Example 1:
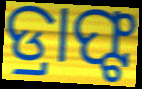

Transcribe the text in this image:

ଡ୍ରାଫ୍ଟ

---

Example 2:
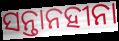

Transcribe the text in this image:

ସନ୍ତାନହୀନା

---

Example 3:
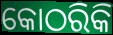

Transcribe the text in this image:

କୋଠରିକି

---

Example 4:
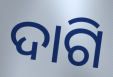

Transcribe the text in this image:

ଦାଗି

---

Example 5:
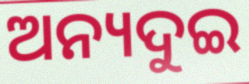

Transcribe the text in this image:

ଅନ୍ୟଦୁଇ